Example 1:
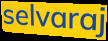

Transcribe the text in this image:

selvaraj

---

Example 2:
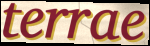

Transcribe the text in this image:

terrae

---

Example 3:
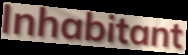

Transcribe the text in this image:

Inhabitant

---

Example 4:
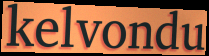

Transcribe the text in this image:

kelvondu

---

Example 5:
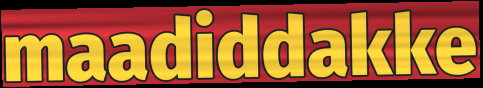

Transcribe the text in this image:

maadiddakke